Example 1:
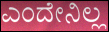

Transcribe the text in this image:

ಎಂದೇನಿಲ್ಲ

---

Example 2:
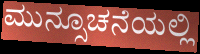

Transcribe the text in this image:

ಮುನ್ಸೂಚನೆಯಲ್ಲಿ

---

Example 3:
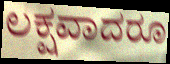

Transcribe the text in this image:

ಲಕ್ಷವಾದರೂ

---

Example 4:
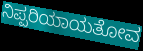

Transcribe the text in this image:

ನಿಪ್ಪರಿಯಾಯತೋವ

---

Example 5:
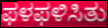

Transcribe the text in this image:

ಫಳಫಳಿಸಿತು